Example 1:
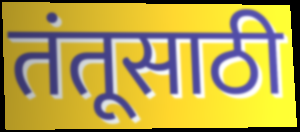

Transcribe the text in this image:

तंतूसाठी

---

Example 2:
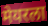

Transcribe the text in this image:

मेयरला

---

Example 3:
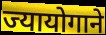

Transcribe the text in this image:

ज्यायोगाने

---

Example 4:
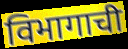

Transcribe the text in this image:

विभागाची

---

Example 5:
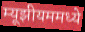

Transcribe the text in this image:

म्यूझीयममध्ये